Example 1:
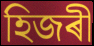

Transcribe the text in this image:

হিজৰী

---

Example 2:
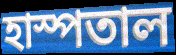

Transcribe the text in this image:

হাস্পতাল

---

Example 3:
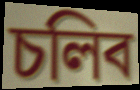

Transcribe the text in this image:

চলিব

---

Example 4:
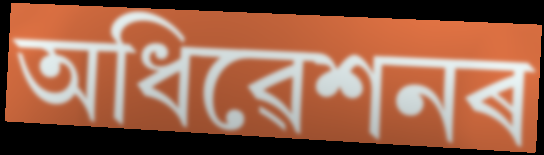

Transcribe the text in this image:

অধিৱেশনৰ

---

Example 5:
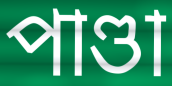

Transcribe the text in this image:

পাণ্ডা